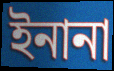
ইনানা